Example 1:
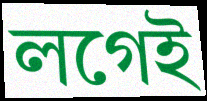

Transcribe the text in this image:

লগেই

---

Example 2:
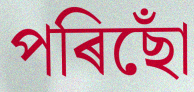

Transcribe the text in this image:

পৰিছোঁ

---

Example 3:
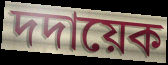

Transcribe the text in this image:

দদায়েক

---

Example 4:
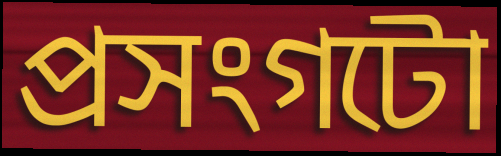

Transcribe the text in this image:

প্ৰসংগটো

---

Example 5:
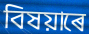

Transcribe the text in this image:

বিষয়াৰে